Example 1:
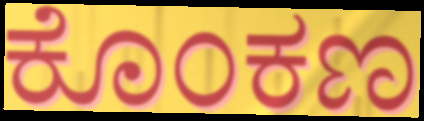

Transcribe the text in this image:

ಕೊಂಕಣ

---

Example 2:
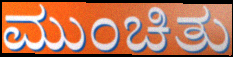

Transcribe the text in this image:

ಮುಂಚಿತು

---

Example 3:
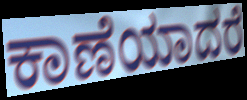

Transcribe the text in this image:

ಕಾಣೆಯಾದರೆ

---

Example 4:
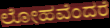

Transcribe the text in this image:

ಲೋಹವೆಂದರೆ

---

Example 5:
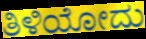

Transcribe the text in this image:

ತಿಳಿಯೋದು